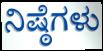
ನಿಷ್ಠೆಗಳು